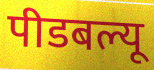
पीडबल्यू